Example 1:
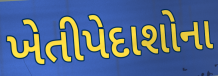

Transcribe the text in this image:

ખેતીપેદાશોના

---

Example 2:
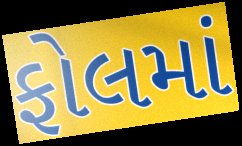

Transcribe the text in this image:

ફોલમાં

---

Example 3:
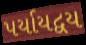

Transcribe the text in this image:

પર્યાયદ્વય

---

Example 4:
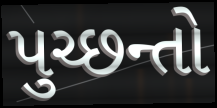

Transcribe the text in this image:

પુચ્છન્તો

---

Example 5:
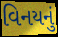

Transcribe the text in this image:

વિનયનું